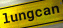
lungcan